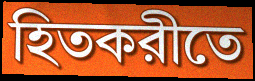
হিতকরীতে